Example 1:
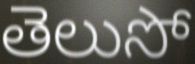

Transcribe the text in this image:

తెలుసో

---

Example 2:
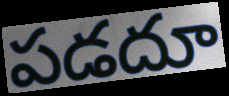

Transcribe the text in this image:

పడదూ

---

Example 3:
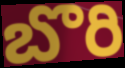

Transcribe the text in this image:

బొరి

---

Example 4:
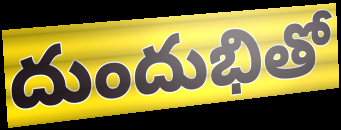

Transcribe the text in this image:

దుందుభితో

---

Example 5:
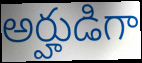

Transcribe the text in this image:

అర్హుడిగా